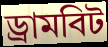
ড্রামবিট